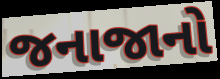
જનાજાનો